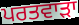
ਪਰਤਵਾੜਾ